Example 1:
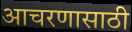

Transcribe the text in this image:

आचरणासाठी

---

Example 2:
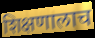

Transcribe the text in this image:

शिक्षणालाच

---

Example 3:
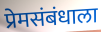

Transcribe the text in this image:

प्रेमसंबंधाला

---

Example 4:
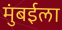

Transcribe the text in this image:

मुंबईला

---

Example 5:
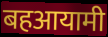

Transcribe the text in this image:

बहआयामी